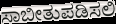
ಸಾಬೀತುಪಡಿಸಲಿ